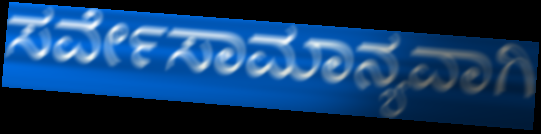
ಸರ್ವೇಸಾಮಾನ್ಯವಾಗಿ